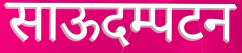
साऊदम्पटन